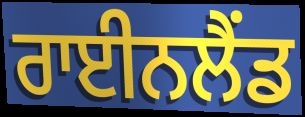
ਰਾਈਨਲੈਂਡ